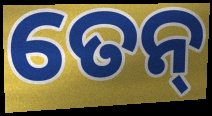
ତେନ୍